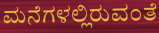
ಮನೆಗಳಲ್ಲಿರುವಂತೆ